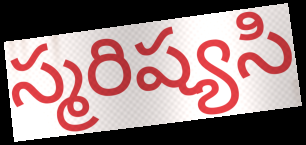
స్మరిష్యసి